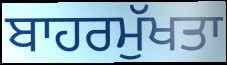
ਬਾਹਰਮੁੱਖਤਾ